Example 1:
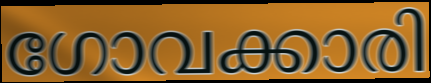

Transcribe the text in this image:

ഗോവക്കാരി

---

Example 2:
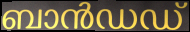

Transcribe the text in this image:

ബാൻഡഡ്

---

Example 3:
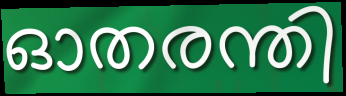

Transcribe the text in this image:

ഓതരന്തി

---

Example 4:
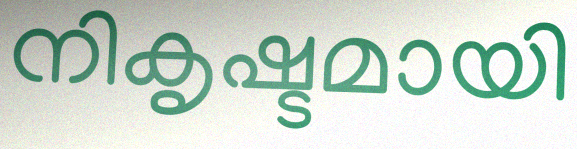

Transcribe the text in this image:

നികൃഷ്ടമായി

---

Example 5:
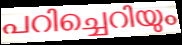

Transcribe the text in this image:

പറിച്ചെറിയും